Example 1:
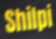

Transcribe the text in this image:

Shilpi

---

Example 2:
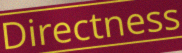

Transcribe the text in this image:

Directness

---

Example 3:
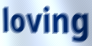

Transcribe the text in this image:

loving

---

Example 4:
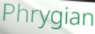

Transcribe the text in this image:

Phrygian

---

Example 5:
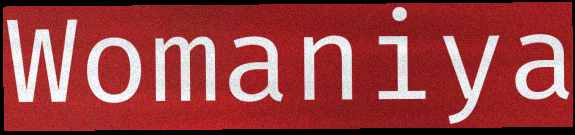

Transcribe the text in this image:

Womaniya